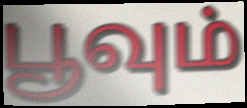
பூவும்